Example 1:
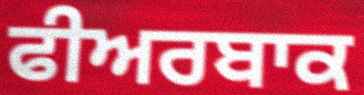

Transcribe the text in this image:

ਫੀਅਰਬਾਕ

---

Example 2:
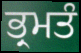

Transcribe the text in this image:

ਭ੍ਰਮਤੰ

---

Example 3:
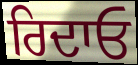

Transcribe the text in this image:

ਰਿਦਾਓ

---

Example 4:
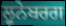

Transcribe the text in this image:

ਲੂਨੇਬਰਗ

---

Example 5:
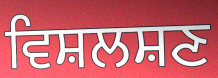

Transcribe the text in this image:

ਵਿਸ਼ਲਸ਼ਣ